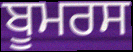
ਬੂਮਰਸ